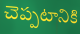
చెప్పటానికి